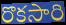
రొకసారి